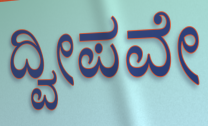
ದ್ವೀಪವೇ